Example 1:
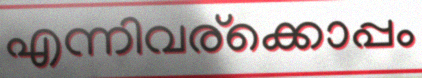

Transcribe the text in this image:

എന്നിവര്ക്കൊപ്പം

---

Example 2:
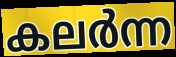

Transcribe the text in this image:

കലർന്ന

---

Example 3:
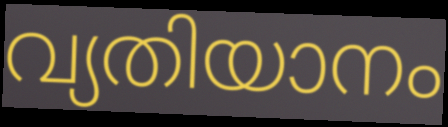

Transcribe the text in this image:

വ്യതിയാനം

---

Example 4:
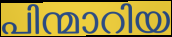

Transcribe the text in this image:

പിന്മാറിയ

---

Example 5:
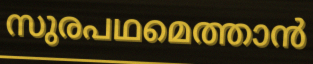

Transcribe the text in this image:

സുരപഥമെത്താൻ